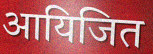
आयिजित